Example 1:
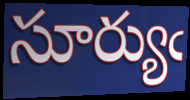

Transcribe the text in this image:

సూర్యుఁ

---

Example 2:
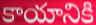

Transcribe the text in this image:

కాయానికి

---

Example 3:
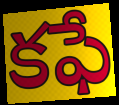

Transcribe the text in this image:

కఫే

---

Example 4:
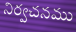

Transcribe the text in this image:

నిర్వచనము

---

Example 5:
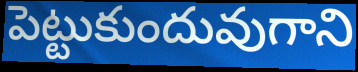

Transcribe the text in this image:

పెట్టుకుందువుగాని